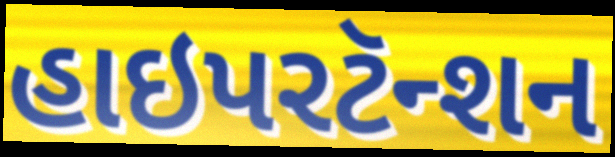
હાઇપરટૅન્શન